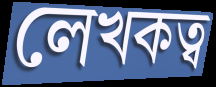
লেখকত্ব